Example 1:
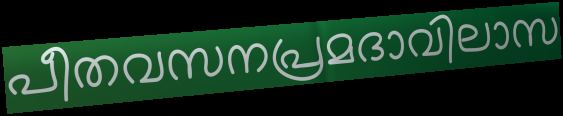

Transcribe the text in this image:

പീതവസനപ്രമദാവിലാസ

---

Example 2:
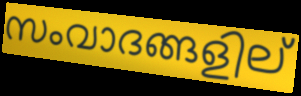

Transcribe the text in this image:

സംവാദങ്ങളില്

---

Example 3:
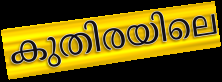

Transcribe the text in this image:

കുതിരയിലെ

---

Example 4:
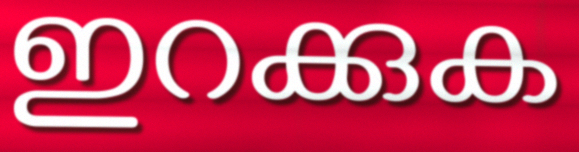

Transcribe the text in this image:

ഇറക്കുക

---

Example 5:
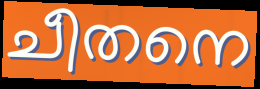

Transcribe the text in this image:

ചീതനെ